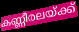
കണ്ണീരലയ്ക്ക്